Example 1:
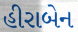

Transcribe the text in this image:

હીરાબેન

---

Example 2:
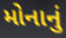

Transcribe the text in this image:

મોનાનું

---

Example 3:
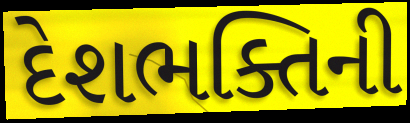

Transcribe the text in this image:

દેશભક્તિની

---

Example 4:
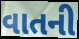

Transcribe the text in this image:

વાતની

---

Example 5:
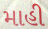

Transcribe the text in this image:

માહી